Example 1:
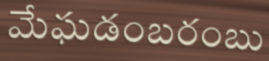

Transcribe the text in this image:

మేఘడంబరంబు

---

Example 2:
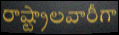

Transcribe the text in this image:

రాష్ట్రాలవారీగా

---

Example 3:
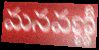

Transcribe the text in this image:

మనవణ్ణీ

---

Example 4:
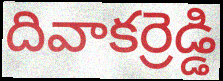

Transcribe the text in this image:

దివాకర్రెడ్డి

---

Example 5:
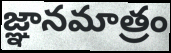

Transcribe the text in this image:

జ్ఞానమాత్రం